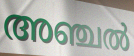
അഞ്ചൽ